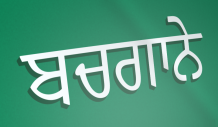
ਬਚਗਾਨੇ